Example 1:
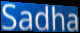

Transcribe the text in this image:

Sadha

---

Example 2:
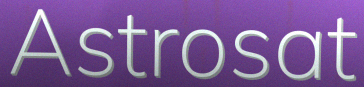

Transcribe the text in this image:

Astrosat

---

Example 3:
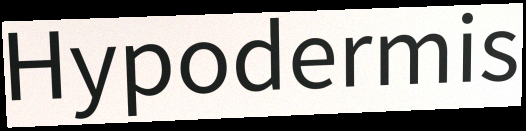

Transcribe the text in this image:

Hypodermis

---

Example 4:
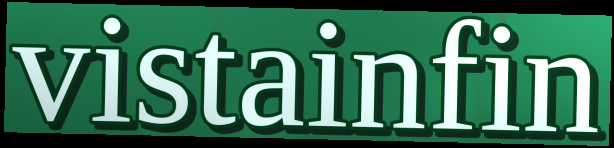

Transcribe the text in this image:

vistainfin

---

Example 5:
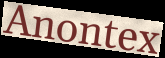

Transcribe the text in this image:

Anontex